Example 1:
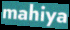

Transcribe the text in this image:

mahiya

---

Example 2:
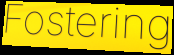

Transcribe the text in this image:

Fostering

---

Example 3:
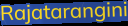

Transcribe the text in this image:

Rajatarangini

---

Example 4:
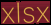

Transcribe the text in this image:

xlsx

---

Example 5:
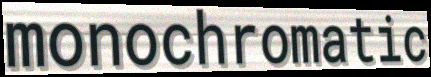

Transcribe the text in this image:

monochromatic